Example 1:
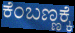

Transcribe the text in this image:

ಕೆಂಬಣ್ಣಕ್ಕೆ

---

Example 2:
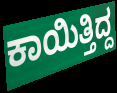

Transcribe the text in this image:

ಕಾಯಿತ್ತಿದ್ದ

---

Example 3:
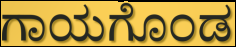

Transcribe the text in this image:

ಗಾಯಗೊಂಡ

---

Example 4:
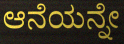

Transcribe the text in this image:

ಆನೆಯನ್ನೇ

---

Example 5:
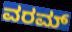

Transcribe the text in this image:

ವರಮ್